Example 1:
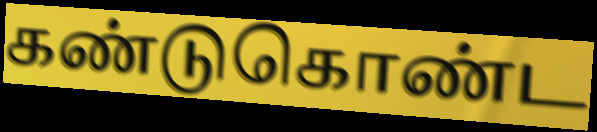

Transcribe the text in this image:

கண்டுகொண்ட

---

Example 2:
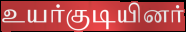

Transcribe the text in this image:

உயர்குடியினர்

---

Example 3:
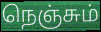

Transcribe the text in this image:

நெஞ்சும்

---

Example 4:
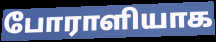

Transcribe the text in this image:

போராளியாக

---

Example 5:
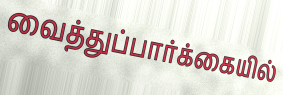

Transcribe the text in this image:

வைத்துப்பார்க்கையில்